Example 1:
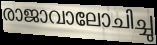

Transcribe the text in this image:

രാജാവാലോചിച്ചു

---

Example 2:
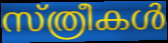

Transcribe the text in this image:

സ്‌ത്രീകൾ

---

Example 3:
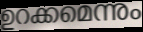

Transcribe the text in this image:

ഉറക്കമെന്നും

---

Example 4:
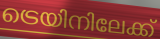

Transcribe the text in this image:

ട്രെയിനിലേക്ക്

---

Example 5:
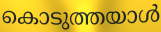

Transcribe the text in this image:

കൊടുത്തയാൾ